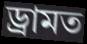
ড্ৰামত